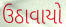
ઉઠાવાયો